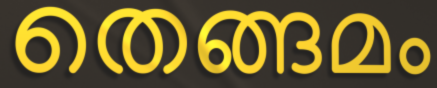
തെങ്ങമം